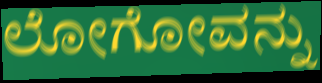
ಲೋಗೋವನ್ನು